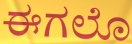
ಈಗಲೊ